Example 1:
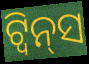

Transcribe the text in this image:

ଟ୍ବିନ୍‌ସ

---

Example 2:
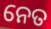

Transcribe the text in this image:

ନେତ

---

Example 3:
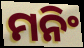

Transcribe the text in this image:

ମନିଂ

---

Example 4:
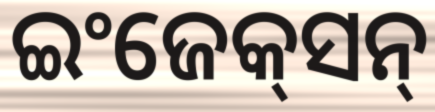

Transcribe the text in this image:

ଇଂଜେକ୍‌ସନ୍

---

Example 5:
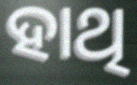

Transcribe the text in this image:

ହାଥି